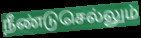
நீண்டுசெல்லும்